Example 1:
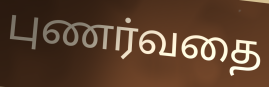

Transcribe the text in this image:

புணர்வதை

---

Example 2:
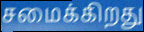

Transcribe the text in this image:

சமைக்கிறது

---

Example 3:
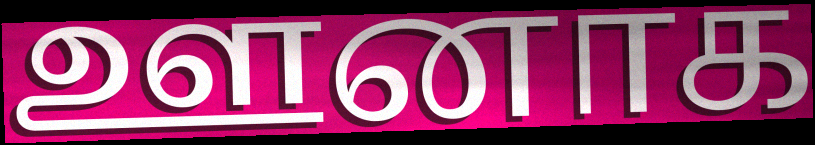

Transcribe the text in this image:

ஊனாக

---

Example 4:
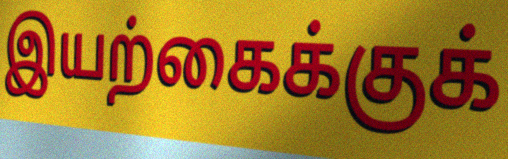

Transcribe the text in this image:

இயற்கைக்குக்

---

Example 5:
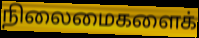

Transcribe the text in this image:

நிலைமைகளைக்